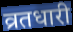
व्रतधारी